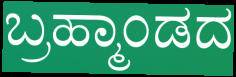
ಬ್ರಹ್ಮಾಂಡದ